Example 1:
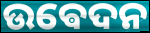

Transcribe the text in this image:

ଉଵେଦନ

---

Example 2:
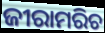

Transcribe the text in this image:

ଜୀରାମରିଚ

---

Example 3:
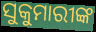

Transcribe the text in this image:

ସୁକୁମାରୀଙ୍କ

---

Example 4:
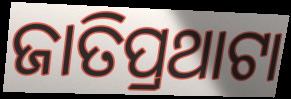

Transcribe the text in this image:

ଜାତିପ୍ରଥାଟା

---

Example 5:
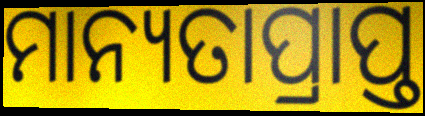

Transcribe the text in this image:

ମାନ୍ୟତାପ୍ରାପ୍ତ